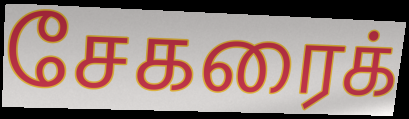
சேகரைக்